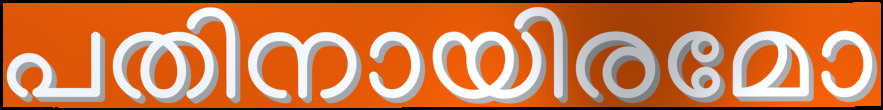
പതിനായിരമോ